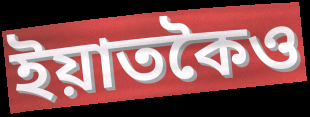
ইয়াতকৈও